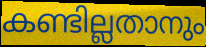
കണ്ടില്ലതാനും